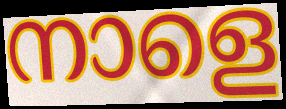
നാളെ